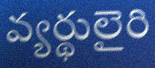
వ్యర్థులైరి